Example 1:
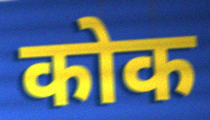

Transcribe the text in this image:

कोक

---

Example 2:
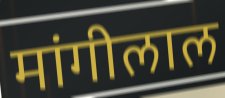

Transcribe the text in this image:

मांगीलाल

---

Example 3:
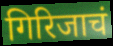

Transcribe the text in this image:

गिरिजाचं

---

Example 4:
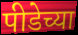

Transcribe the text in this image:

पीडेच्या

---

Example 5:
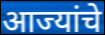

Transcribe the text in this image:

आज्यांचे